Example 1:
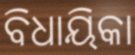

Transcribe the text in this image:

ବିଧାୟିକା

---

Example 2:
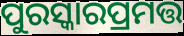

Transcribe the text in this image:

ପୁରସ୍କାରପ୍ରମତ୍ତ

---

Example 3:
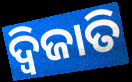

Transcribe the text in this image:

ଦ୍ୱିଜାତି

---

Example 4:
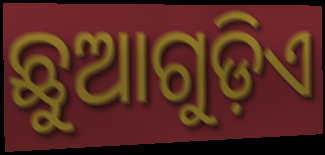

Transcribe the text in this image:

ଛୁଆଗୁଡ଼ିଏ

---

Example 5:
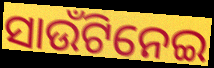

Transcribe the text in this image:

ସାଉଁଟିନେଇ